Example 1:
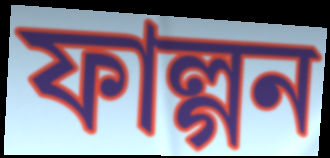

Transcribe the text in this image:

ফাল্গন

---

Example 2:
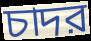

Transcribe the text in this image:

চাদর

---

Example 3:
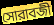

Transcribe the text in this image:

সোরাবজী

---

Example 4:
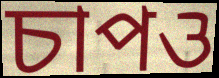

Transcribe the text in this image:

চাপও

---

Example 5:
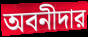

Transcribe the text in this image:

অবনীদার